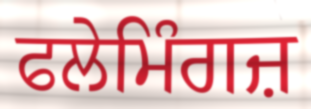
ਫਲੇਮਿੰਗਜ਼